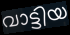
വാട്ടിയ